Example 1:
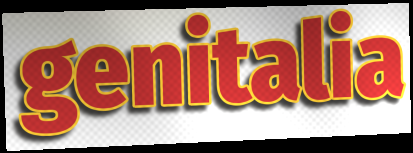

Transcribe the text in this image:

genitalia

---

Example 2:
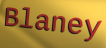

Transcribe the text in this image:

Blaney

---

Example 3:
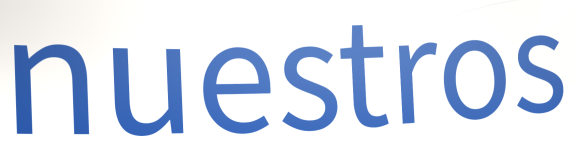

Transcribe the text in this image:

nuestros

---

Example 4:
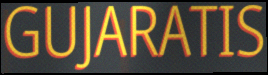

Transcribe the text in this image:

GUJARATIS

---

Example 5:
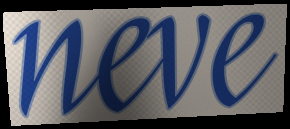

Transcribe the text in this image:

neve